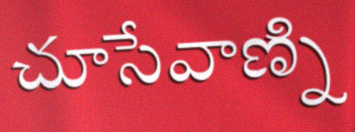
చూసేవాణ్ని